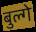
बुल्गे